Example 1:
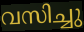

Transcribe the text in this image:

വസിച്ചു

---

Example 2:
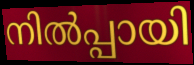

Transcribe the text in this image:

നിൽപ്പായി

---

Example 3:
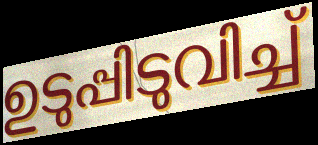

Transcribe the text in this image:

ഉടുപ്പിടുവിച്ച്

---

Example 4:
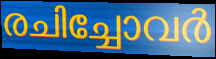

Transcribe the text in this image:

രചിച്ചോവർ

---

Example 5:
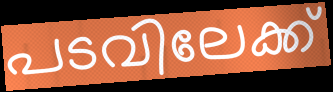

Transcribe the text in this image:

പടവിലേക്ക്